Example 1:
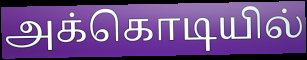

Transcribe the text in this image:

அக்கொடியில்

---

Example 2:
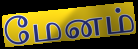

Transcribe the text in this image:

மேனம்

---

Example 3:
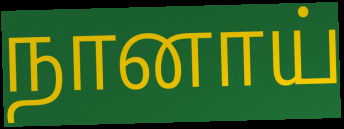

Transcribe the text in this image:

நானாய்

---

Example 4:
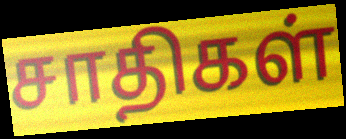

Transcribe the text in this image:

சாதிகள்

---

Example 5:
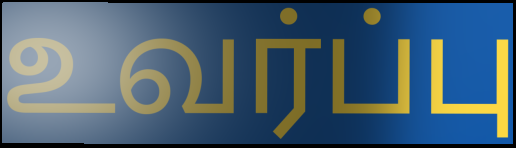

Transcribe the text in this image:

உவர்ப்பு